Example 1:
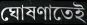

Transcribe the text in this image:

ঘোষণাতেই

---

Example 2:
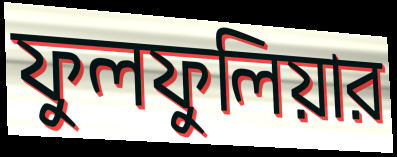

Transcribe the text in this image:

ফুলফুলিয়ার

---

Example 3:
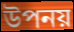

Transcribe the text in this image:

উপনয়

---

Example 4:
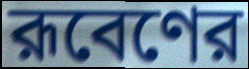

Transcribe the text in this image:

রূবেণের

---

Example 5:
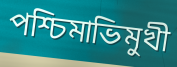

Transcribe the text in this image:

পশ্চিমাভিমুখী